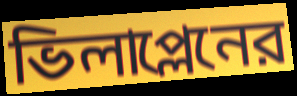
ভিলাপ্লেনের